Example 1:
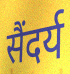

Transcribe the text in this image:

सैंदर्य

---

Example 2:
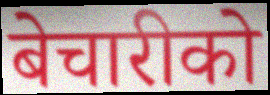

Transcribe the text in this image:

बेचारीको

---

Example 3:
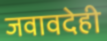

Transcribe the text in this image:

जवावदेही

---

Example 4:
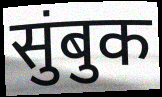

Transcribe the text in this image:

सुंबुक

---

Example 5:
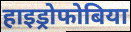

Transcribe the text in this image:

हाइड्रोफोबिया